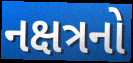
નક્ષત્રનો